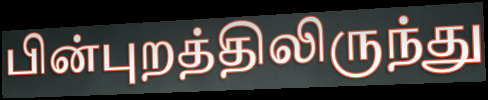
பின்புறத்திலிருந்து